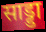
साड्डा